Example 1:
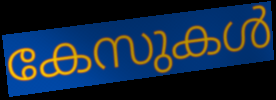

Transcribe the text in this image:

കേസുകൾ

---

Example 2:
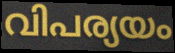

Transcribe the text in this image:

വിപര്യയം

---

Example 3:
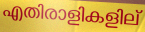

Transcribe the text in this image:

എതിരാളികളില്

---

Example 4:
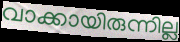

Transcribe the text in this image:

വാക്കായിരുന്നില്ല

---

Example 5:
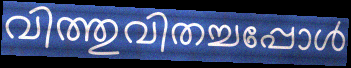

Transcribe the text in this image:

വിത്തുവിതച്ചപ്പോൾ